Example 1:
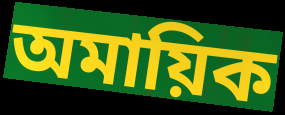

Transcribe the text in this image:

অমায়িক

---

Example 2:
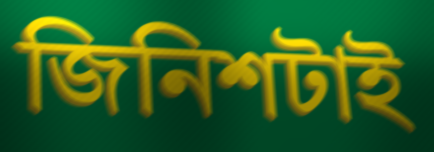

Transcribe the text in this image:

জিনিশটাই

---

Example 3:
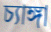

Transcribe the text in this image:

চ্যাঙ্গা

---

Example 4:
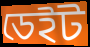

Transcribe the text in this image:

ডেইট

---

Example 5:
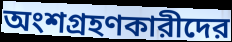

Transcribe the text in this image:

অংশগ্রহণকারীদের